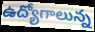
ఉద్యోగాలున్న